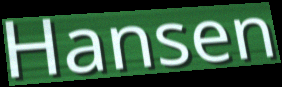
Hansen